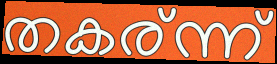
തകര്ന്ന്